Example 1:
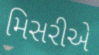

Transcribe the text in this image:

મિસરીએ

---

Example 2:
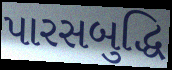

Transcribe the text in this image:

પારસબુદ્ધિ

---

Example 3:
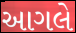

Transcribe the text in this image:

આગલે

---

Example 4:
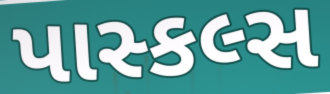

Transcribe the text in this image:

પાસ્કલ્સ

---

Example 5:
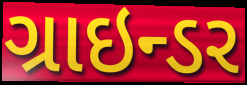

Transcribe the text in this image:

ગ્રાઇન્ડર